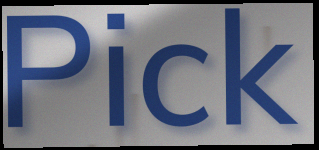
Pick